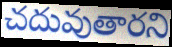
చదువుతారని